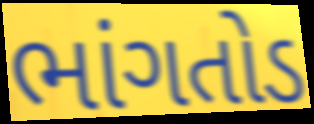
ભાંગતોડ